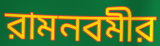
রামনবমীর